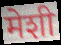
मेशी